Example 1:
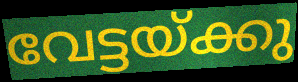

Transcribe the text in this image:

വേട്ടയ്ക്കു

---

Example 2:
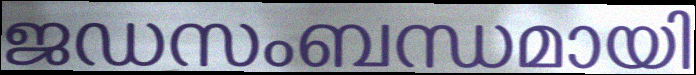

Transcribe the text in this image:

ജഡസംബന്ധമായി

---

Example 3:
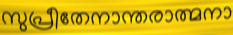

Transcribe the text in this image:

സുപ്രീതേനാന്തരാത്മനാ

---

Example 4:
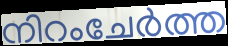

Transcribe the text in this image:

നിറംചേർത്ത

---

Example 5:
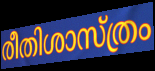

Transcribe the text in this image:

രീതിശാസ്ത്രം